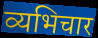
व्यभिचार